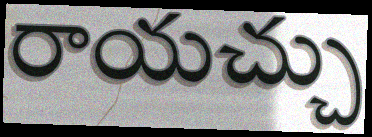
రాయచ్చు